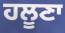
ਹਲੂਣਾ